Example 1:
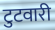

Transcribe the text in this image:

टुटवारी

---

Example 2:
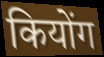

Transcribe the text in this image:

कियोंग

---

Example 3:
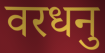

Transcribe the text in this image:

वरधनु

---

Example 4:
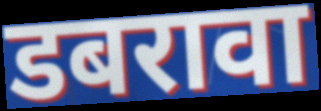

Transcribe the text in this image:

डबरावा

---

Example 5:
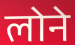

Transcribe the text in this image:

लोने